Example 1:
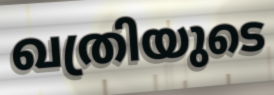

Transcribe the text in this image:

ഖത്രിയുടെ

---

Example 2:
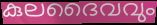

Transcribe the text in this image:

കുലദൈവവും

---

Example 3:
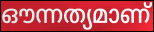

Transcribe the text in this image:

ഔന്നത്യമാണ്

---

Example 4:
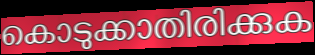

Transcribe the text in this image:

കൊടുക്കാതിരിക്കുക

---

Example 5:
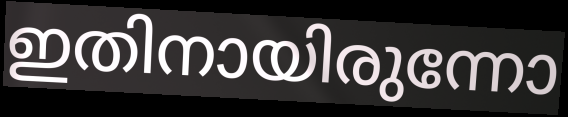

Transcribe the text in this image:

ഇതിനായിരുന്നോ